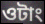
ওটাং